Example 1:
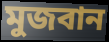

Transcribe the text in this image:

মুজবান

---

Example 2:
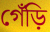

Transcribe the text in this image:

গেঁড়ি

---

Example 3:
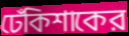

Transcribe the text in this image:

ঢেঁকিশাকের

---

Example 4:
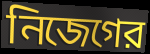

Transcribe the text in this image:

নিজেগের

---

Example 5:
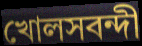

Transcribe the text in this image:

খোলসবন্দী